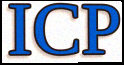
ICP